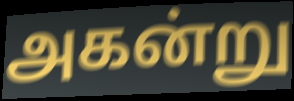
அகன்று